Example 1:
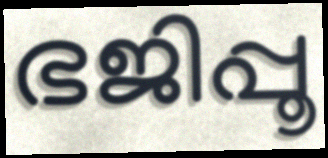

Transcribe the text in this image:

ഭജിപ്പൂ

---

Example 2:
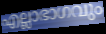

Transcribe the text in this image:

എല്ലാഭാഗവും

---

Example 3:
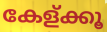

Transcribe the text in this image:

കേള്ക്കൂ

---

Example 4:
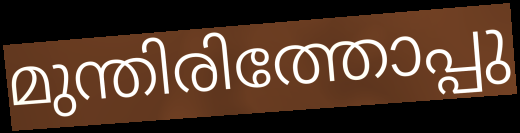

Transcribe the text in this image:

മുന്തിരിത്തോപ്പു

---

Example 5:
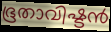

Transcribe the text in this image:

ഭൂതാവിഷ്ടൻ